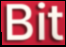
Bit